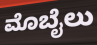
ಮೊಬೈಲು